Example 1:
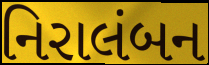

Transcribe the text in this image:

નિરાલંબન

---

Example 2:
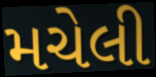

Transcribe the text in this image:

મચેલી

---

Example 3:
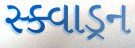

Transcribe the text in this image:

સ્ક્વાડ્રન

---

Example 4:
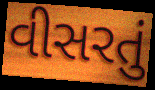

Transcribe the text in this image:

વીસરતું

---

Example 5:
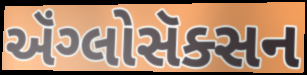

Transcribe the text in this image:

ઍંગ્લોસૅક્સન